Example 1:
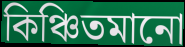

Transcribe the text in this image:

কিঞ্চিতমানো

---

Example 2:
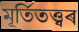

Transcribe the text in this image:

মূৰ্তিতত্ত্বৰ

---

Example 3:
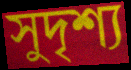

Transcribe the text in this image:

সুদৃশ্য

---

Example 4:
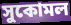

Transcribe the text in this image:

সুকোমল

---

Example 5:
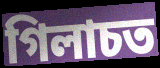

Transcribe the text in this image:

গিলাচত